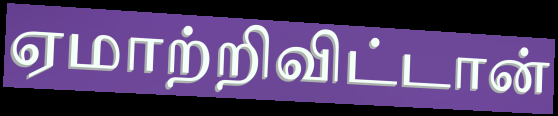
ஏமாற்றிவிட்டான்